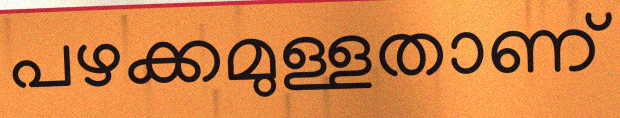
പഴക്കമുള്ളതാണ്